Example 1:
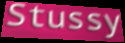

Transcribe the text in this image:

Stussy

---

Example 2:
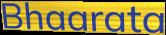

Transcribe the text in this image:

Bhaarata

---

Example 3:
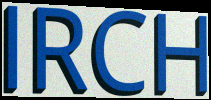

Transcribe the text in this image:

IRCH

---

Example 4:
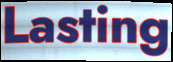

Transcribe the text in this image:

Lasting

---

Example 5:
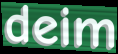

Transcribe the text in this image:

deim